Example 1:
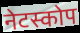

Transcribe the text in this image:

नेटस्कोप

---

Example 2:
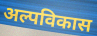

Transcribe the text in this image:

अल्पविकास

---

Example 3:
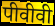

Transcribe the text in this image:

पीवीवी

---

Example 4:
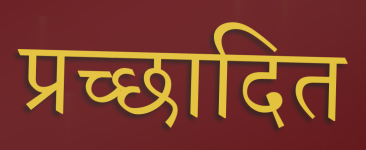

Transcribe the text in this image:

प्रच्छादित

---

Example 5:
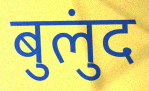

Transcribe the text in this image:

बुलुंद